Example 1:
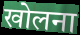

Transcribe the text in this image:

खोलना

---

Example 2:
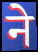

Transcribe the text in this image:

ने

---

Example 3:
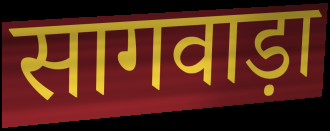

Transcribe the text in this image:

सागवाड़ा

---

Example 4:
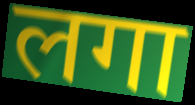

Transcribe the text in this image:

लगा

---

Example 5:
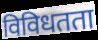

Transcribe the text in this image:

विविधतता